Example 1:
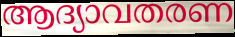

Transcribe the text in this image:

ആദ്യാവതരണ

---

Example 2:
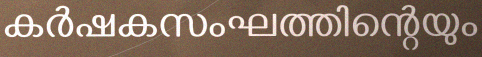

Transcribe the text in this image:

കർഷകസംഘത്തിന്റെയും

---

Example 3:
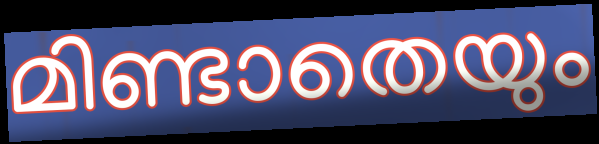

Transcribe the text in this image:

മിണ്ടാതെയും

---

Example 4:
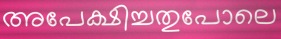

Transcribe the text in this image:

അപേക്ഷിച്ചതുപോലെ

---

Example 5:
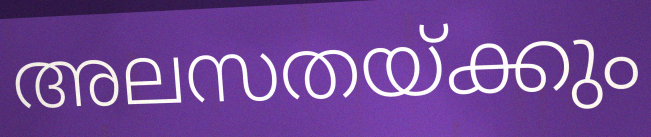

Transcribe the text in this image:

അലസതയ്ക്കും